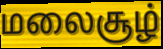
மலைசூழ்